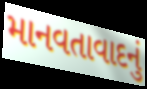
માનવતાવાદનું